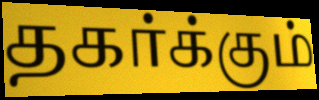
தகர்க்கும்